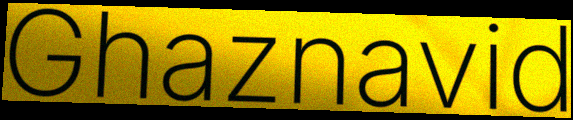
Ghaznavid